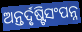
ଅନ୍ତର୍ଦୃଷ୍ଟିସଂପନ୍ନ